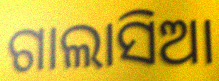
ଗାଲାସିଆ